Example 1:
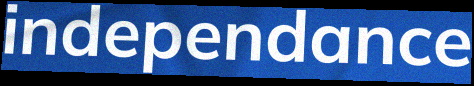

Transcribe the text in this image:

independance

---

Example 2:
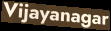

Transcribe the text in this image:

Vijayanagar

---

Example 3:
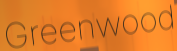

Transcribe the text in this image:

Greenwood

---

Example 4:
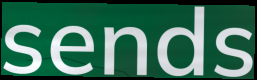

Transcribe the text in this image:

sends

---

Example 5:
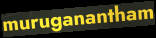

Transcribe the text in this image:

muruganantham